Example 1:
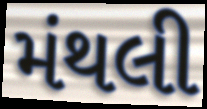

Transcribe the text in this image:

મંથલી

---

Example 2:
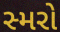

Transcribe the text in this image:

સ્મરો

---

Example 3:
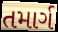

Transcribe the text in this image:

તમાર્ગ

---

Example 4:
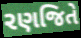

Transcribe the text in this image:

રણજિતે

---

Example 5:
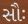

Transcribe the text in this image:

સૌઃ